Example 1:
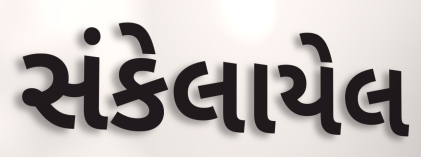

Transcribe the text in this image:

સંકેલાયેલ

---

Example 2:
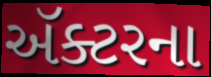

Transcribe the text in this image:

ઍક્ટરના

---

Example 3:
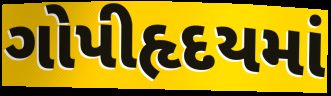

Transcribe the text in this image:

ગોપીહૃદયમાં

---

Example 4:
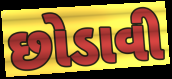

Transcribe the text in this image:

છોડાવી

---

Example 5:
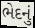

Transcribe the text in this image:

ભેદનું